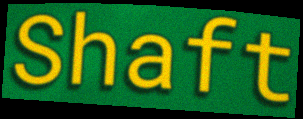
Shaft